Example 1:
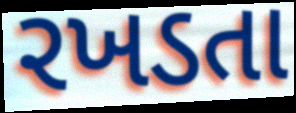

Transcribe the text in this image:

રખડતા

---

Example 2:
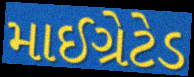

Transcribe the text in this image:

માઈગ્રેટેડ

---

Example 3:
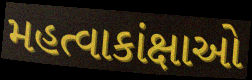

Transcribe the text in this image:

મહત્વાકાંક્ષાઓ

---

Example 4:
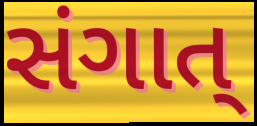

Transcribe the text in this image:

સંગાત્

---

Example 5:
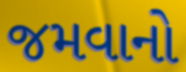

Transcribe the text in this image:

જમવાનો